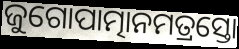
ଜୁଗୋପାତ୍ମାନମତ୍ରସ୍ତୋ